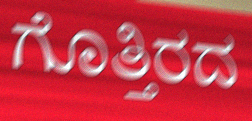
ಗೊತ್ತಿರದ